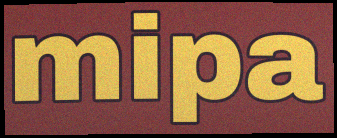
mipa